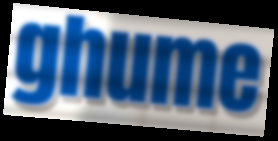
ghume